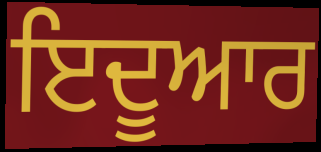
ਇਦੂਆਰ